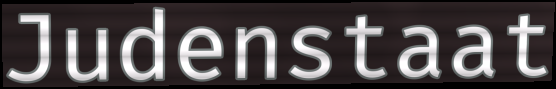
Judenstaat